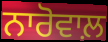
ਨਾਰੋਵਾਲ਼